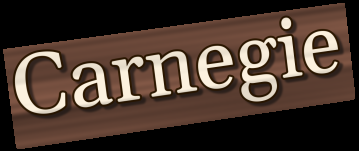
Carnegie